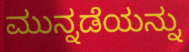
ಮುನ್ನಡೆಯನ್ನು